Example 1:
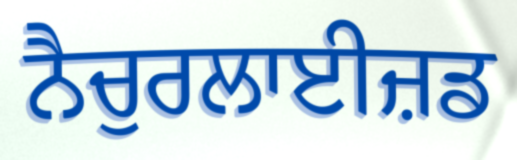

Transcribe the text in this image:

ਨੈਚੁਰਲਾਈਜ਼ਡ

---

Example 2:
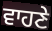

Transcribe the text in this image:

ਵਾਹਣੇ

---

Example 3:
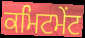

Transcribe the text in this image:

ਕਮਿਟਮੇਂਟ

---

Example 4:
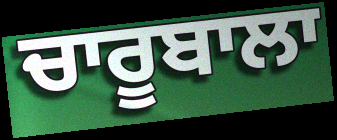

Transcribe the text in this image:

ਚਾਰੂਬਾਲਾ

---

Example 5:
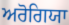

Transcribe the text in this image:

ਅਰੋਗਿਯਾ